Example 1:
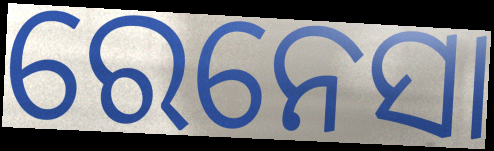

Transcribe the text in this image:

ରେନେସା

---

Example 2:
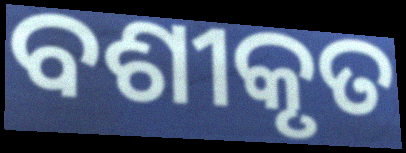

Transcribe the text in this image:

ବଶୀକୃତ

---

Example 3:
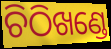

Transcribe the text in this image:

ଚିଠିଖଣ୍ଡେ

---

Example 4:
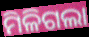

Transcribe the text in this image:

ମିଳିଗଲା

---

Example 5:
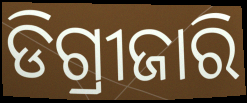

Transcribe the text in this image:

ଡିଗ୍ରୀଜାରି